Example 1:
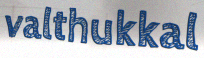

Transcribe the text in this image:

valthukkal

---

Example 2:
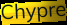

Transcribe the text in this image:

Chypre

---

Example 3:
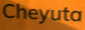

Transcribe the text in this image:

Cheyuta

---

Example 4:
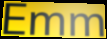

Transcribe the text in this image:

Emm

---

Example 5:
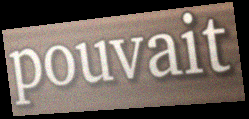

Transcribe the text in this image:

pouvait